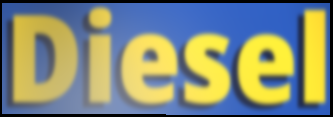
Diesel